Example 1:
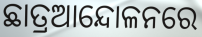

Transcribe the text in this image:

ଛାତ୍ରଆନ୍ଦୋଳନରେ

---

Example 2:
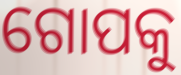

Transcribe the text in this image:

ଗୋପକୁ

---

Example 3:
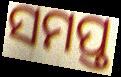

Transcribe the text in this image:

ସମପ୍ତ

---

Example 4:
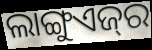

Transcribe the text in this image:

ଲାଙ୍ଗୁଏଜ୍‌ର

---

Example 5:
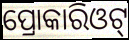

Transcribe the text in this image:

ପ୍ରୋକାରିଓଟ୍